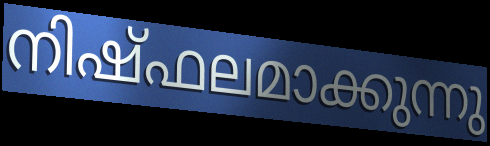
നിഷ്ഫലമാക്കുന്നു